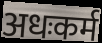
अधःकर्म